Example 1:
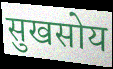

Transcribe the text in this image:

सुखसोय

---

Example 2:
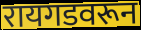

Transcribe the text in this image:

रायगडवरून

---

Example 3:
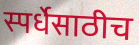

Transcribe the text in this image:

स्पर्धेसाठीच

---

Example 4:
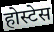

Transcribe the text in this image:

होस्टेस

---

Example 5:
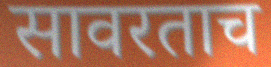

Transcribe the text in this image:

सावरताच